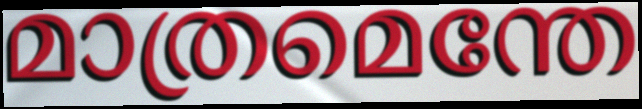
മാത്രമെന്തേ